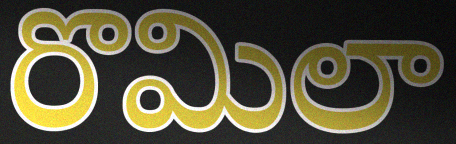
రొమిలా